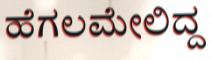
ಹೆಗಲಮೇಲಿದ್ದ